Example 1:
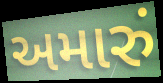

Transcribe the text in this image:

અમારું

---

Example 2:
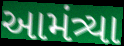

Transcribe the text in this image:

આમંત્ર્યા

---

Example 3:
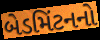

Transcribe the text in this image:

બેડમિંટનનો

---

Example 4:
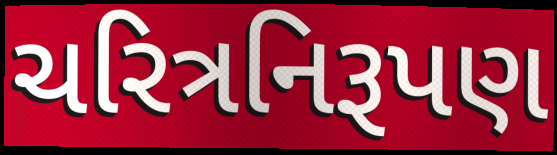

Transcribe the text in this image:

ચરિત્રનિરૂપણ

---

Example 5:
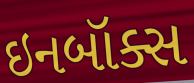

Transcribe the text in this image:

ઇનબૉક્સ